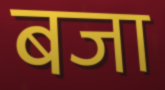
बजा